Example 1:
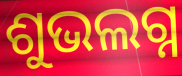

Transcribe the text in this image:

ଶୁଭଲଗ୍ନ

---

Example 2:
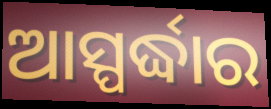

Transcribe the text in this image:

ଆସ୍ପର୍ଦ୍ଧାର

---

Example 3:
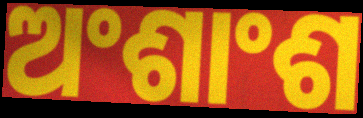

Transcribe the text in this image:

ଅଂଶାଂଶ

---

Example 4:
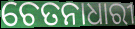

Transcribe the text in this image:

ଚେତନାଧାରୀ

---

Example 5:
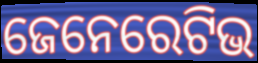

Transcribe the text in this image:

ଜେନେରେଟିଭ